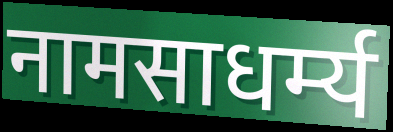
नामसाधर्म्य